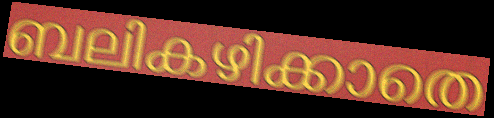
ബലികഴിക്കാതെ